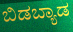
ಬಿಡಬ್ಯಾಡ